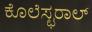
ಕೊಲೆಸ್ಟರಾಲ್